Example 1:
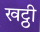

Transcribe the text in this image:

खट्ठी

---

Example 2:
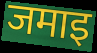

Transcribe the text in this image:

जमाइ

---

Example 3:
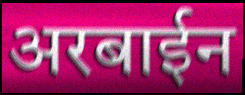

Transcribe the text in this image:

अरबाईन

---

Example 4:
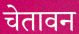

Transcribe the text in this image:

चेतावन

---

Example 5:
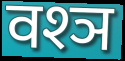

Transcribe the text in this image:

वश्ञ